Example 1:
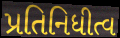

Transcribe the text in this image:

પ્રતિનિધીત્વ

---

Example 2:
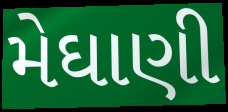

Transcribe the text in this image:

મેઘાણી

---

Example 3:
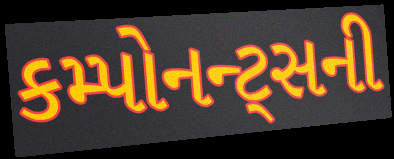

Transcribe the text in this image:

કમ્પોનન્ટ્સની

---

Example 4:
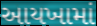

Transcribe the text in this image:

આયખામાં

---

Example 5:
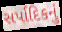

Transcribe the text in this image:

સર્પાદિકનું